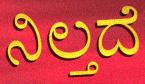
ನಿಲ್ತದೆ